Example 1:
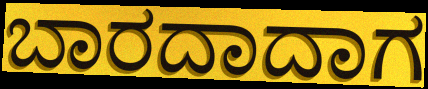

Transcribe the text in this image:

ಬಾರದಾದಾಗ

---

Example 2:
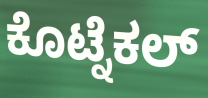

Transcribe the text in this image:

ಕೊಟ್ನೆಕಲ್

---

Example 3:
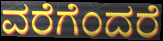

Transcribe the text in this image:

ವರೆಗೆಂದರೆ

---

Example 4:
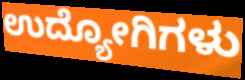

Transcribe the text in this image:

ಉದ್ಯೋಗಿಗಳು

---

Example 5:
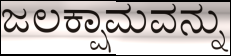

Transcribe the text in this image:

ಜಲಕ್ಷಾಮವನ್ನು